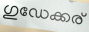
ഗുഡേക്കര്